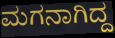
ಮಗನಾಗಿದ್ದ